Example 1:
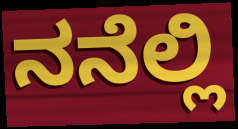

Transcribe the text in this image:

ನನೆಲ್ಲಿ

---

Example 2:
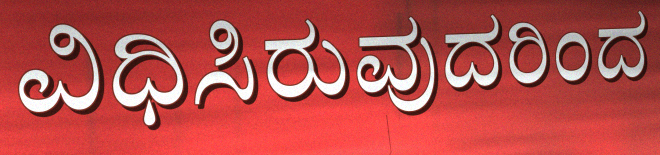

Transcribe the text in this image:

ವಿಧಿಸಿರುವುದರಿಂದ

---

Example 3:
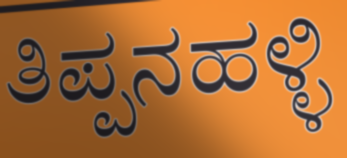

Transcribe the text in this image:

ತಿಪ್ಪನಹಳ್ಳಿ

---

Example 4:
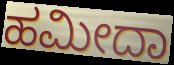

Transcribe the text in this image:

ಹಮೀದಾ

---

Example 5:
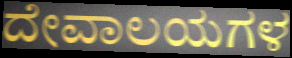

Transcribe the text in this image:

ದೇವಾಲಯಗಳ